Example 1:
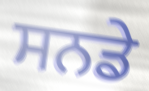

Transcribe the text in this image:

ਸਨਡੇ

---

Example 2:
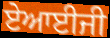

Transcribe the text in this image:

ਏਆਈਜੀ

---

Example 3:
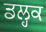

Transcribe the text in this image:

ਡਲ੍ਹਕ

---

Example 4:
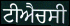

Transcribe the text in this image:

ਟੀਐਚਸੀ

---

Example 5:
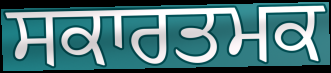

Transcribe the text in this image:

ਸਕਾਰਤਮਕ